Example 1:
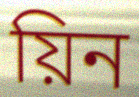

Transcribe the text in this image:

য়িন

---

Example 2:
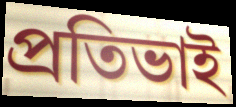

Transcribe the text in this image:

প্ৰতিভাই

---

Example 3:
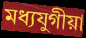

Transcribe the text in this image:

মধ্যযুগীয়া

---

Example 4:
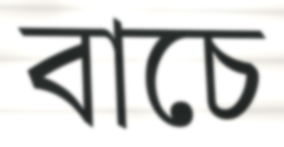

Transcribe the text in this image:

বাচে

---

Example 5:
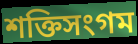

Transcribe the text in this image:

শক্তিসংগম